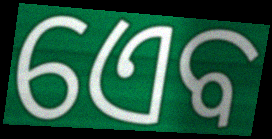
ଏେବ